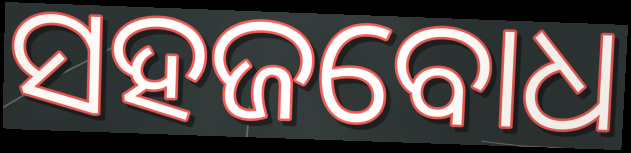
ସହଜବୋଧ